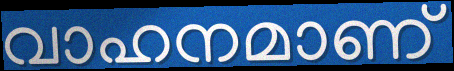
വാഹനമാണ്